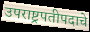
उपराष्ट्रपतीपदाचे